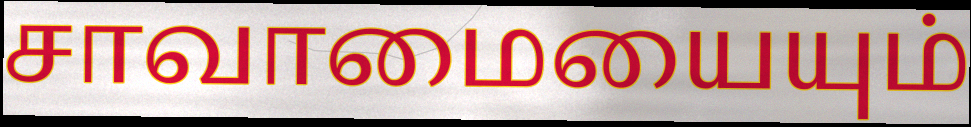
சாவாமையையும்